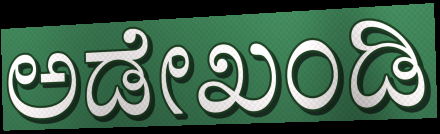
ಅಡೇಖಂಡಿ